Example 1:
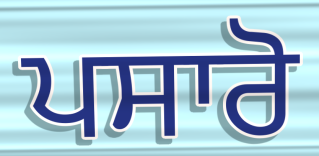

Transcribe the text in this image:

ਪਸਾਰੋ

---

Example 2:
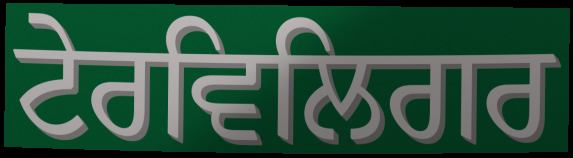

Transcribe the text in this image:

ਟੇਰਵਿਲਿਗਰ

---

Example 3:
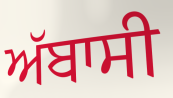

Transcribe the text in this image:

ਅੱਬਾਸੀ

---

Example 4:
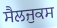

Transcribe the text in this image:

ਸੈਲਜੁਕਸ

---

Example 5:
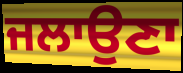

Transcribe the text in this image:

ਜਲਾਉਣਾ